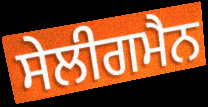
ਸੇਲੀਗਮੈਨ